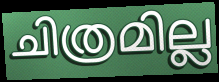
ചിത്രമില്ല